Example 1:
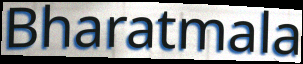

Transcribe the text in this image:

Bharatmala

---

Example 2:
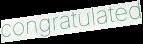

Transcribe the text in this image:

congratulated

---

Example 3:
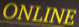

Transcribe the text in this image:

ONLINE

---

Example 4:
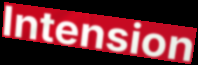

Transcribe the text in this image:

Intension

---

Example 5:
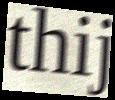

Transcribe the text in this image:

thij